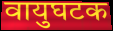
वायुघटक